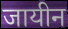
जायीन